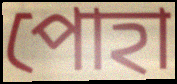
পোহা